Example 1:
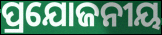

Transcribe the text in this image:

ପ୍ରଯୋଜନୀୟ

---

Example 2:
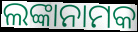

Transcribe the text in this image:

ଲଙ୍କାନାମକ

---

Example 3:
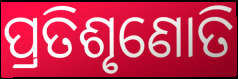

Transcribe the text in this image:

ପ୍ରତିଶୃଣୋତି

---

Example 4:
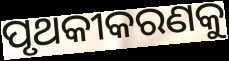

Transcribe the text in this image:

ପୃଥକୀକରଣକୁ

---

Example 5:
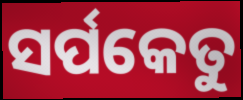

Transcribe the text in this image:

ସର୍ପକେତୁ